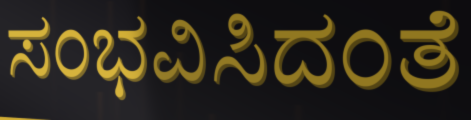
ಸಂಭವಿಸಿದಂತೆ